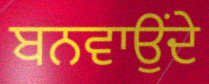
ਬਨਵਾਉਂਦੇ